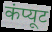
कंप्यूट